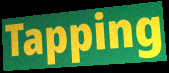
Tapping